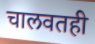
चालवतही